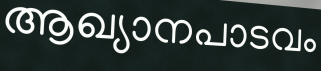
ആഖ്യാനപാടവം